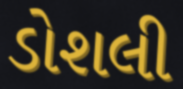
ડોશલી